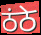
ठंठे